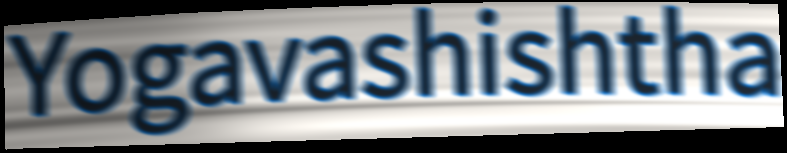
Yogavashishtha